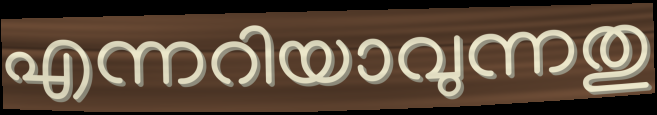
എന്നറിയാവുന്നതു